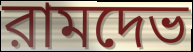
রামদেভ